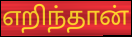
எறிந்தான்